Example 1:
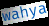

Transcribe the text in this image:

wahya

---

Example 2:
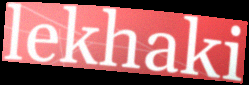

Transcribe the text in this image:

lekhaki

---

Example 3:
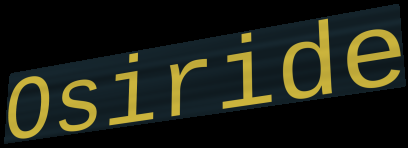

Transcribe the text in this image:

Osiride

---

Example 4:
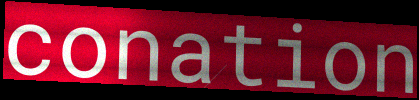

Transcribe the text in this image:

conation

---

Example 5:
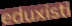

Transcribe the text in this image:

eduxisti